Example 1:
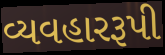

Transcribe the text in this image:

વ્યવહારરૂપી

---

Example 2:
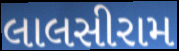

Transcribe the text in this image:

લાલસીરામ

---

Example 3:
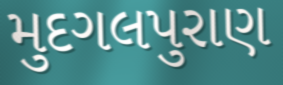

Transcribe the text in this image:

મુદગલપુરાણ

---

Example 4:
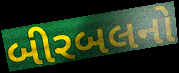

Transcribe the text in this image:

બીરબલનો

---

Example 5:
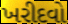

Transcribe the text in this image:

ખરીદવો